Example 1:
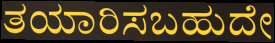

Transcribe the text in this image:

ತಯಾರಿಸಬಹುದೇ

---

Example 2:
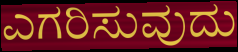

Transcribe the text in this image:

ಎಗರಿಸುವುದು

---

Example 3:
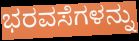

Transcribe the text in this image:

ಭರವಸೆಗಳನ್ನು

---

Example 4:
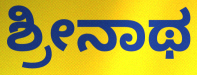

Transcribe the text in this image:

ಶ್ರೀನಾಥ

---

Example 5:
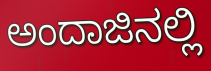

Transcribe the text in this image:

ಅಂದಾಜಿನಲ್ಲಿ